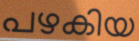
പഴകിയ